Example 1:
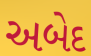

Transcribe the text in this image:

અબેદ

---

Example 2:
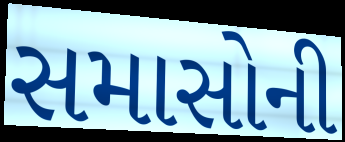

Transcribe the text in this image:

સમાસોની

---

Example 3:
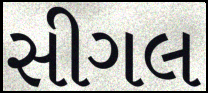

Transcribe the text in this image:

સીગલ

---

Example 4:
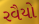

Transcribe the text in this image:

રવૈયો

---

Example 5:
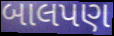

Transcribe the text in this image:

બાલપણ